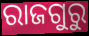
ରାଜଗୁରୁ